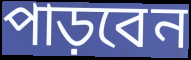
পাড়বেন